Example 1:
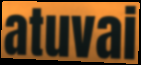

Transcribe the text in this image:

atuvai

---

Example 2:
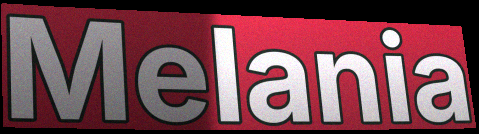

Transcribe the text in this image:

Melania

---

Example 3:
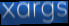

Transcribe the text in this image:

xargs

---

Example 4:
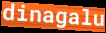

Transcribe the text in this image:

dinagalu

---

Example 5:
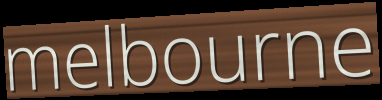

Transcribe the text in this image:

melbourne